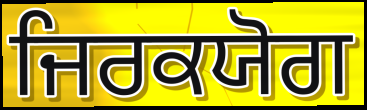
ਜਿਰਕਯੋਗ